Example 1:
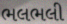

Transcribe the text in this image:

ભલભલી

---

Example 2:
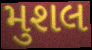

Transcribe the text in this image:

મુશલ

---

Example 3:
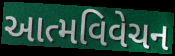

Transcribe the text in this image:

આત્મવિવેચન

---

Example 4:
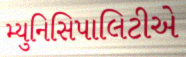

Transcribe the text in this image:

મ્યુનિસિપાલિટીએ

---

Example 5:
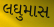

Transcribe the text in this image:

લઘુમાસ